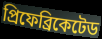
প্রিফেব্রিকেটেড